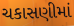
ચકાસણીમાં